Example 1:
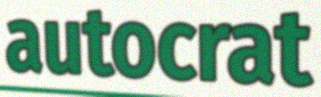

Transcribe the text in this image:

autocrat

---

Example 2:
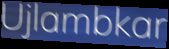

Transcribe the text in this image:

Ujlambkar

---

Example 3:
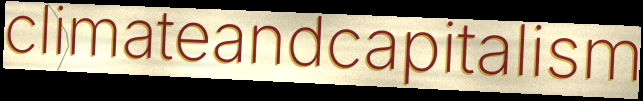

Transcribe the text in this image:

climateandcapitalism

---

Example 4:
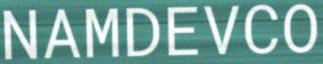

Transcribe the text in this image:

NAMDEVCO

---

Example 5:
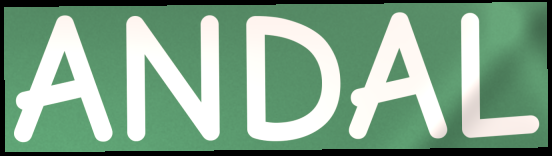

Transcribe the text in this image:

ANDAL